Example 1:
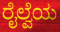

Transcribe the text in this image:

ರೈಲ್ವೆಯ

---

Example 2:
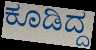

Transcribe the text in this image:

ಕೂಡಿದ್ದ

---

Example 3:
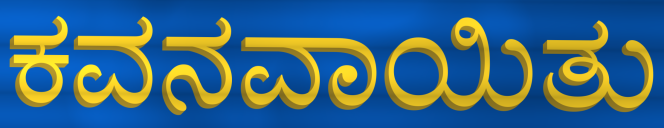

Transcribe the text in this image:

ಕವನವಾಯಿತು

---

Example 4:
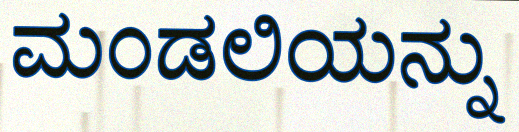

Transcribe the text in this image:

ಮಂಡಲಿಯನ್ನು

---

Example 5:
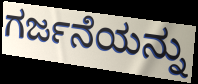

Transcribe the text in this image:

ಗರ್ಜನೆಯನ್ನು